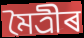
মৈত্ৰীৰ